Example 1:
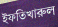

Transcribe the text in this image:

ইফতিখারুল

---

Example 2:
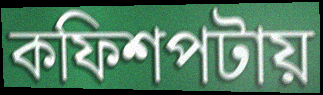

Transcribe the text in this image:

কফিশপটায়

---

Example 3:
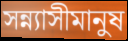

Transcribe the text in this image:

সন্ন্যাসীমানুষ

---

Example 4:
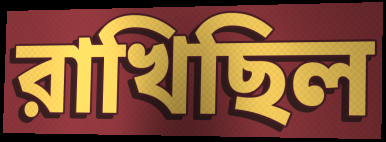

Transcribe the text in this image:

রাখিছিল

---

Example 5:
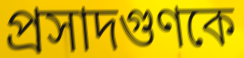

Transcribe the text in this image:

প্রসাদগুণকে